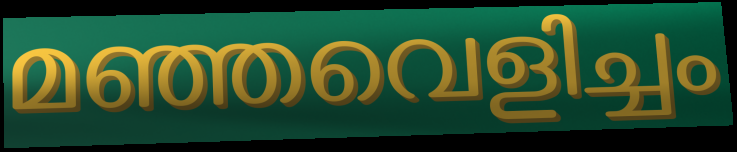
മഞ്ഞവെളിച്ചം